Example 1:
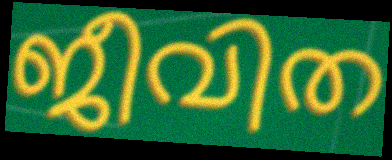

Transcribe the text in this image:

ജീവിത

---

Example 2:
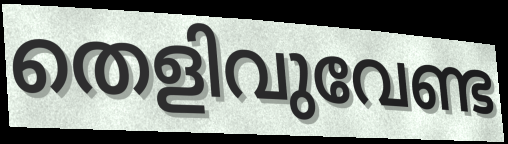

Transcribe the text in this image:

തെളിവുവേണ്ട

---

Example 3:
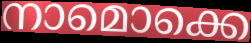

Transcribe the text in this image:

നാമൊക്കെ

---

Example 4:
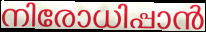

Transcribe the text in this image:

നിരോധിപ്പാൻ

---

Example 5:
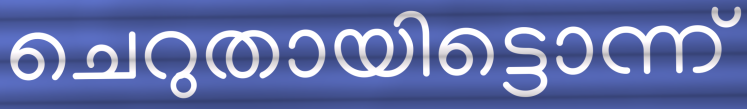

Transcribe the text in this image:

ചെറുതായിട്ടൊന്ന്